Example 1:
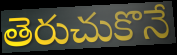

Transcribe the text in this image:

తెరుచుకొనే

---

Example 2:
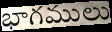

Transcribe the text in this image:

భాగములు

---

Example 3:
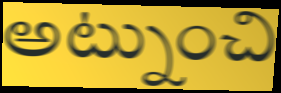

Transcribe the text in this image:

అట్నుంచి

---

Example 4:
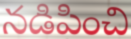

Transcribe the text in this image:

నడిపించి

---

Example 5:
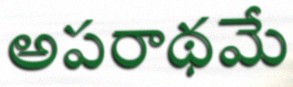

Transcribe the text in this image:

అపరాథమే